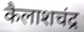
कैलाशचंद्र